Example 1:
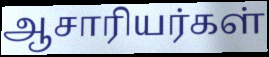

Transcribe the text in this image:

ஆசாரியர்கள்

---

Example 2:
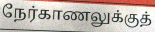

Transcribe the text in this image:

நேர்காணலுக்குத்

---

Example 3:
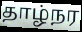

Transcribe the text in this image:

தாழ்நர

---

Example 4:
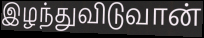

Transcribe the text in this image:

இழந்துவிடுவான்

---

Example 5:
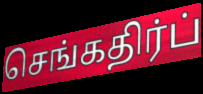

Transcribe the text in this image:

செங்கதிர்ப்